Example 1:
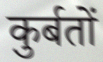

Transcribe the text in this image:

कुर्बतों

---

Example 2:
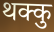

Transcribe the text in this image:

थक्कु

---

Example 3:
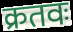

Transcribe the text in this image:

क्रतवः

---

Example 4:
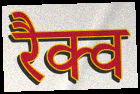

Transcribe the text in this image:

रैक्व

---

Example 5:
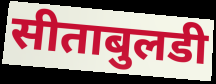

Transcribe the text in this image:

सीताबुलडी